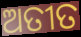
ଅତୀତ